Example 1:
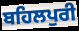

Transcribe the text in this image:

ਬਹਿਲਪੁਰੀ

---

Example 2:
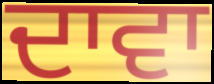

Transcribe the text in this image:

ਦਾਵਾ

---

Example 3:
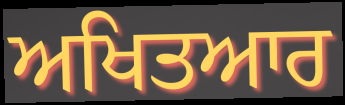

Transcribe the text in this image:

ਅਖਿਤਆਰ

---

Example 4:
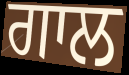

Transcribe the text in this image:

ਗਾਲ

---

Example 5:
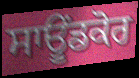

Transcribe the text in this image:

ਸਾਊਂਡਕੋਰ